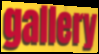
gallery